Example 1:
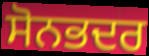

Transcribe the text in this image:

ਸੋਨਭਦਰ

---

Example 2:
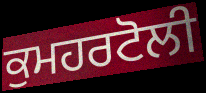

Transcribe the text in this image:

ਕੁਮਹਰਟੋਲੀ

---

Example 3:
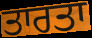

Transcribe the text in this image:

ਤਾਰਤਾ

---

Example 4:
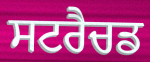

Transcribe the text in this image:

ਸਟਰੈਚਡ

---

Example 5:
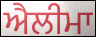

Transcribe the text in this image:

ਐਲੀਮਾ